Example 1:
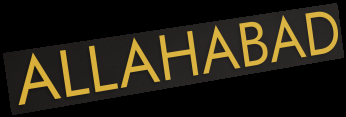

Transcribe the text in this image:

ALLAHABAD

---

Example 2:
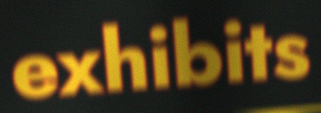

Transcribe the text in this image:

exhibits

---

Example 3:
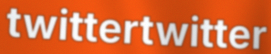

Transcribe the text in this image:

twittertwitter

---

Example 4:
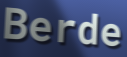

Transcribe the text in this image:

Berde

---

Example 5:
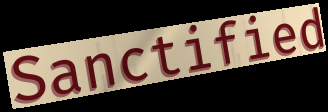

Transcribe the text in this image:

Sanctified